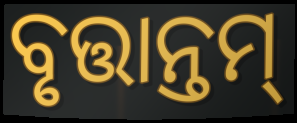
ବୃତ୍ତାନ୍ତମ୍